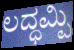
ಲದ್ಧಮ್ಪಿ